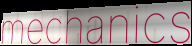
mechanics